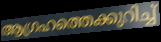
ആഗ്രഹത്തെക്കുറിച്ച്